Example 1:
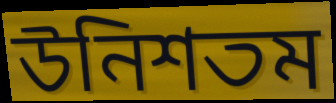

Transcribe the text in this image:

উনিশতম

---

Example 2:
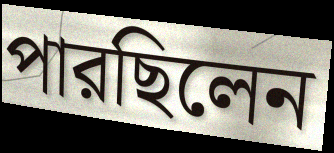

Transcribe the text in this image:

পারছিলেন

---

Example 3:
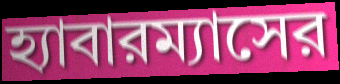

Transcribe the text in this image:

হ্যাবারম্যাসের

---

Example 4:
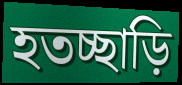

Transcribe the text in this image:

হতচ্ছাড়ি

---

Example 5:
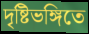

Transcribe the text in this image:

দৃষ্টিভঙ্গিতে